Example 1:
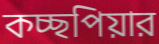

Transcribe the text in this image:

কচ্ছপিয়ার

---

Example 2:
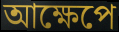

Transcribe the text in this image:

আক্ষেপে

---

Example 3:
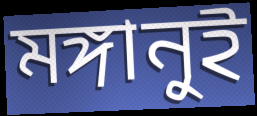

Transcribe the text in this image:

মঙ্গানুই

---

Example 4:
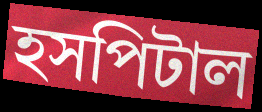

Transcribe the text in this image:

হসপিটাল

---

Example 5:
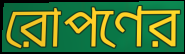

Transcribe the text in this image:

রোপণের